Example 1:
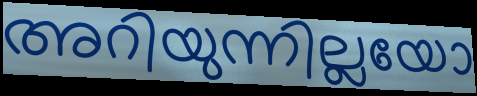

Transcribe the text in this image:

അറിയുന്നില്ലയോ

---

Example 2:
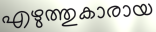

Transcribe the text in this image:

എഴുത്തുകാരായ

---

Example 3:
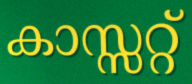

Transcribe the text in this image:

കാസ്സറ്റ്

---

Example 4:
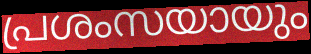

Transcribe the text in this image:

പ്രശംസയായും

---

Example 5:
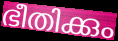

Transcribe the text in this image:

ഭീതിക്കും